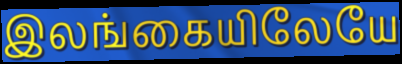
இலங்கையிலேயே